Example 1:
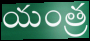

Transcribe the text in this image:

యంత్ర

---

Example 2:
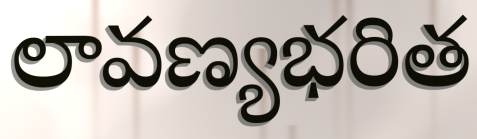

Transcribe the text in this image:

లావణ్యభరిత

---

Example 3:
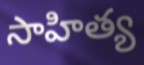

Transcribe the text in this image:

సాహిత్య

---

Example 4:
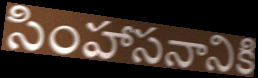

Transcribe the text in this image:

సింహాసనానికి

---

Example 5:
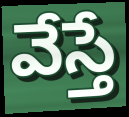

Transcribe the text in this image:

వేస్తే